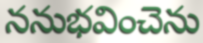
ననుభవించెను